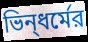
ভিন্‌ধর্মের